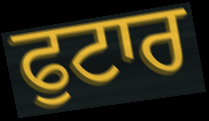
ਫੁਟਾਰ